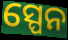
ସ୍ପେନ